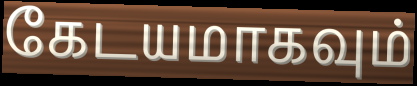
கேடயமாகவும்